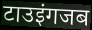
टाउइंगजब